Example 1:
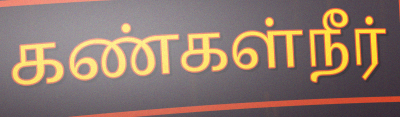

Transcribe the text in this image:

கண்கள்நீர்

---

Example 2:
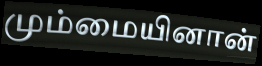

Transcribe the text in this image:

மும்மையினான்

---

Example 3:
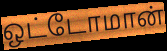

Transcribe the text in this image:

ஒட்டோமான்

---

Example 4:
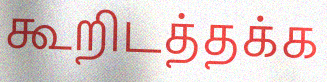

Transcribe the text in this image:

கூறிடத்தக்க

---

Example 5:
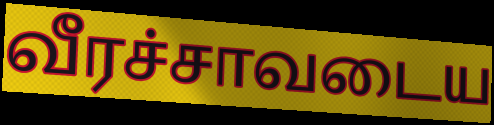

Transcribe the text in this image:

வீரச்சாவடைய